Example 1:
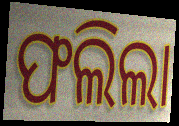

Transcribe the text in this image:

ଫଲିଲା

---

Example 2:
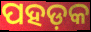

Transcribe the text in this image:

ପହଡ଼କ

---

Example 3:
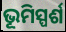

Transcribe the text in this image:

ଭୂମିସ୍ପର୍ଶ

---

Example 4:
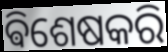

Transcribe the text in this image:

ଵିଶେଷକରି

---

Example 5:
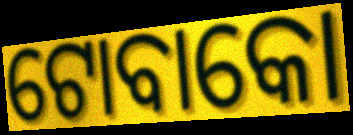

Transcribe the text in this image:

ଟୋବାକୋ